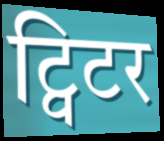
ट्विटर